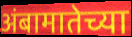
अंबामातेच्या